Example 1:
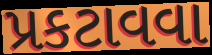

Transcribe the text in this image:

પ્રકટાવવા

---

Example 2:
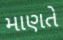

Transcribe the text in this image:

માણતે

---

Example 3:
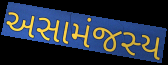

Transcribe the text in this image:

અસામંજસ્ય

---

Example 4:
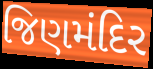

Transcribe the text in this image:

જિણમંદિર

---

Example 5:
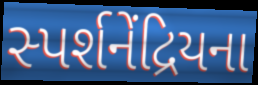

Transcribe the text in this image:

સ્પર્શનેંદ્રિયના